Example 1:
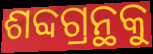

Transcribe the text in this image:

ଶବ୍ଦଗ୍ରନ୍ଥକୁ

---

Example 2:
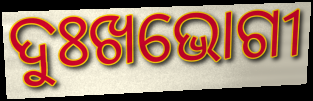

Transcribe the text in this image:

ଦୁଃଖଭୋଗୀ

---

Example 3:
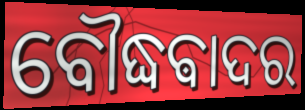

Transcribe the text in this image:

ବୌଦ୍ଧଵାଦର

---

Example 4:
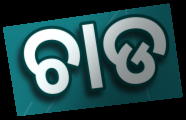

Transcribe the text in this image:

ଚାଡ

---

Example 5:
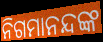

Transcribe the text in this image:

ନିଗମାନନ୍ଦଙ୍କ